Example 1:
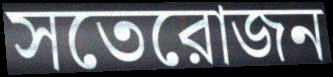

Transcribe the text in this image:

সতেরোজন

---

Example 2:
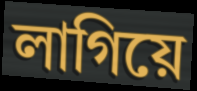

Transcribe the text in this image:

লাগিয়ে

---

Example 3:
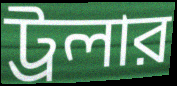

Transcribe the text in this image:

ট্রলার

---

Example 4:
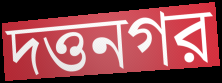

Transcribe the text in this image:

দত্তনগর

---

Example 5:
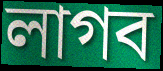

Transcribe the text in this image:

লাগব